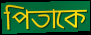
পিতাকে